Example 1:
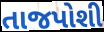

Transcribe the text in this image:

તાજપોશી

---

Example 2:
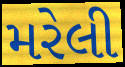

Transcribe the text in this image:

મરેલી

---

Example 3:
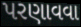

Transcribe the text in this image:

પરણાવવા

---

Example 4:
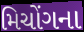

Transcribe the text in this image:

મિચોંગના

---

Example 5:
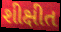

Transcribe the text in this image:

શીક્ષીત